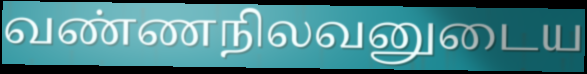
வண்ணநிலவனுடைய